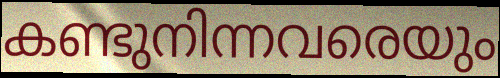
കണ്ടുനിന്നവരെയും